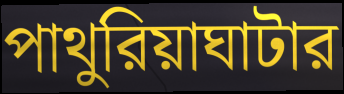
পাথুরিয়াঘাটার